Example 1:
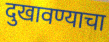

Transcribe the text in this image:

दुखावण्याचा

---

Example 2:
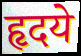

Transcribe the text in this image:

हृदये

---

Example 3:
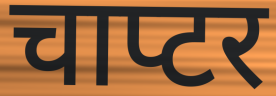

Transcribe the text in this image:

चाप्टर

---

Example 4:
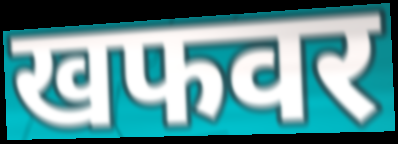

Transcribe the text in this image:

खफवर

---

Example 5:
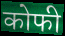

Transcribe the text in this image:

कोफी